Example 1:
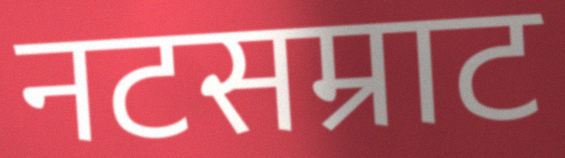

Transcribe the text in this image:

नटसम्राट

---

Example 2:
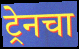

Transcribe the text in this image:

ट्रेनचा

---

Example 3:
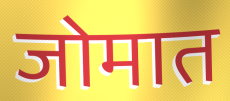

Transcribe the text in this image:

जोमात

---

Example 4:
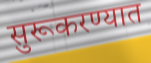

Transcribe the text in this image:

सुरूकरण्यात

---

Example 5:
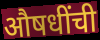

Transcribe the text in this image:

औषधींची